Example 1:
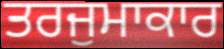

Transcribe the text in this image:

ਤਰਜੁਮਾਕਾਰ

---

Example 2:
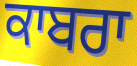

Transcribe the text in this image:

ਕਾਬਰਾ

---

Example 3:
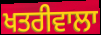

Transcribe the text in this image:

ਖਤਰੀਵਾਲਾ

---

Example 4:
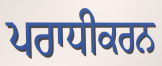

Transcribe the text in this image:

ਪਰਾਧੀਕਰਨ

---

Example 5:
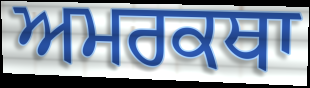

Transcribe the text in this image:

ਅਮਰਕਥਾ